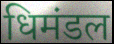
धिमंडल